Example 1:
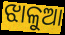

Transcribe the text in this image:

ଝାଳୁଆ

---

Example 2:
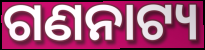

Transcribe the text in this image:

ଗଣନାଟ୍ୟ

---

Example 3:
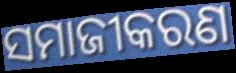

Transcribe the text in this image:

ସମାଜୀକରଣ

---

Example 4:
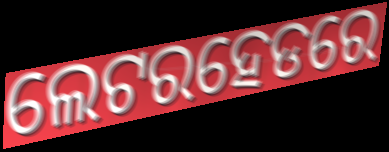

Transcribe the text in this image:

ଲେଟରହେଡରେ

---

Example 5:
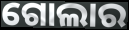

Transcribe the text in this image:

ଗୋଲାର